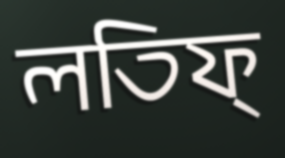
লতিফ্